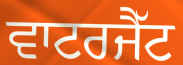
ਵਾਟਰਜੈੱਟ